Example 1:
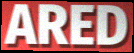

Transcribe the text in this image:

ARED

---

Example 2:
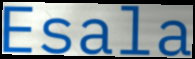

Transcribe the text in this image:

Esala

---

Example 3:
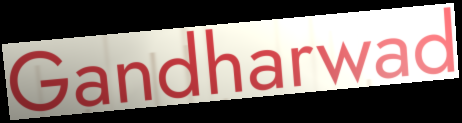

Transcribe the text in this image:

Gandharwad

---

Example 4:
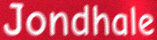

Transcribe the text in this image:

Jondhale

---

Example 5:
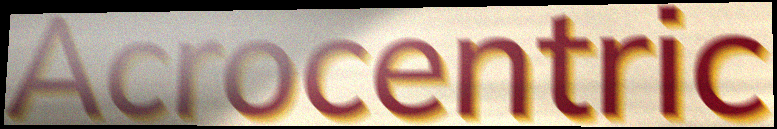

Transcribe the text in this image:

Acrocentric